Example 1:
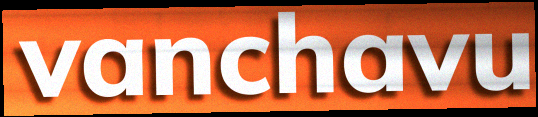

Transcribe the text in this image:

vanchavu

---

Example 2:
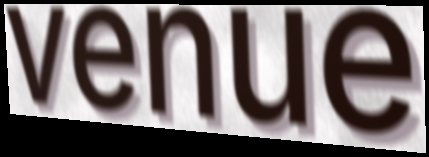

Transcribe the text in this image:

venue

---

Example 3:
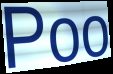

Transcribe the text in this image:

Poo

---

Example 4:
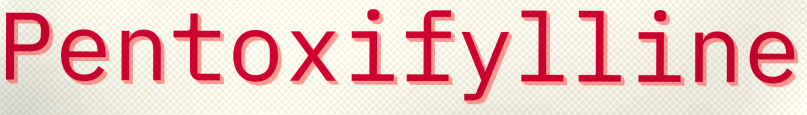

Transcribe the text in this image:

Pentoxifylline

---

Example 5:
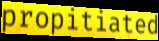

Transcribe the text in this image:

propitiated